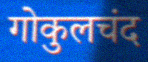
गोकुलचंद